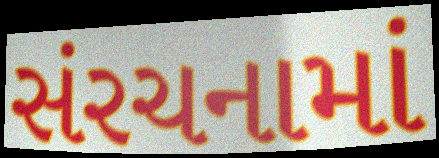
સંરચનામાં